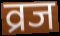
व्रज